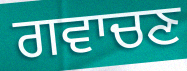
ਗਵਾਚਣ